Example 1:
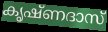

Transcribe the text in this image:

കൃഷ്ണദാസ്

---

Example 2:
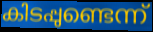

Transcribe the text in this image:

കിടപ്പുണ്ടെന്ന്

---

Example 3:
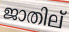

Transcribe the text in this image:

ജാതില്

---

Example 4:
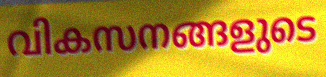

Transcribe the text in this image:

വികസനങ്ങളുടെ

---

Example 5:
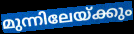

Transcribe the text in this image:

മുന്നിലേയ്ക്കും